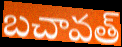
బచావత్